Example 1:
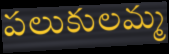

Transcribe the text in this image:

పలుకులమ్మ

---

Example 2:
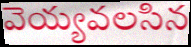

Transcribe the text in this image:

వెయ్యవలసిన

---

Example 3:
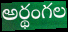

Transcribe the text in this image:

అర్థంగల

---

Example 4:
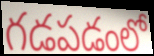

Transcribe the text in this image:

గడపడంలో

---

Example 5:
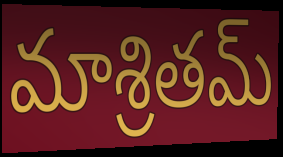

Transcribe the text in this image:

మాశ్రితమ్